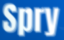
Spry